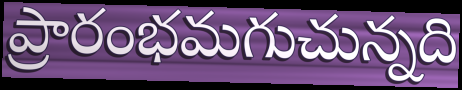
ప్రారంభమగుచున్నది